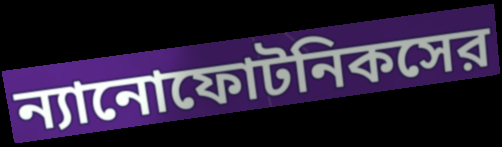
ন্যানোফোটনিকসের